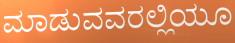
ಮಾಡುವವರಲ್ಲಿಯೂ